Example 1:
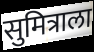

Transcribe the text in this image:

सुमित्राला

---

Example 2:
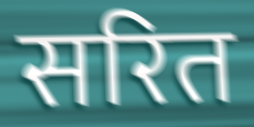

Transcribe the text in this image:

सरित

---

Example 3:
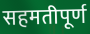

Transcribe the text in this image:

सहमतीपूर्ण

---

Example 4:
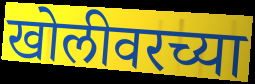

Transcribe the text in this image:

खोलीवरच्या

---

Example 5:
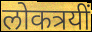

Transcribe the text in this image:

लोकत्रयीं